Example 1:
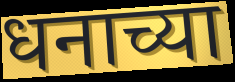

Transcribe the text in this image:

धनाच्या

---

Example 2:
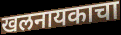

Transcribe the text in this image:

खलनायकाचा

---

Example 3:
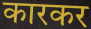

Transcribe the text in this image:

कारकर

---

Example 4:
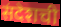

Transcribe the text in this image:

संदेशची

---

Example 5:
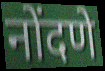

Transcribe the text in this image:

नोंदणे